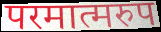
परमात्मरुप